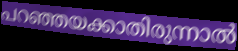
പറഞ്ഞയക്കാതിരുന്നാൽ